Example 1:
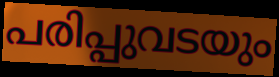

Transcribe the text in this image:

പരിപ്പുവടയും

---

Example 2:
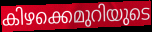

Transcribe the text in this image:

കിഴക്കെമുറിയുടെ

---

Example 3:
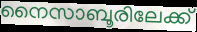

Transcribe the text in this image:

നൈസാബൂരിലേക്ക്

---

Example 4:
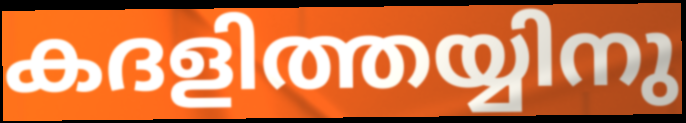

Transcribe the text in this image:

കദളിത്തയ്യിനു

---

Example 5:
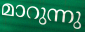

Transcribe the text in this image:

മാറുന്നു